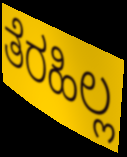
ತೆರಹಿಲ್ಲ